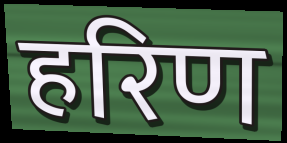
हरिण